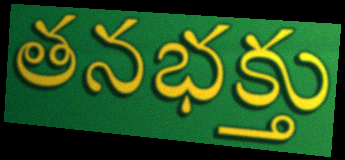
తనభక్తు